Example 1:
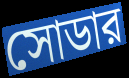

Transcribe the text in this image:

সোডার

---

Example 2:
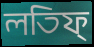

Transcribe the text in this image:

লতিফ্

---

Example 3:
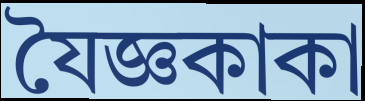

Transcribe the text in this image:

যৈজ্ঞকাকা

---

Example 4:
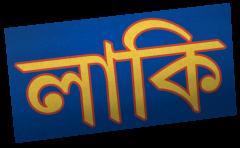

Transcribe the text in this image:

লাকি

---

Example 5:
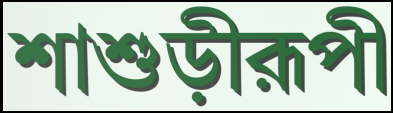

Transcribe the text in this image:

শাশুড়ীরূপী